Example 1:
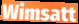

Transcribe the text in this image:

Wimsatt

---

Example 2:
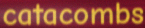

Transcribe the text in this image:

catacombs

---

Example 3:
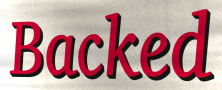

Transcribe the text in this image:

Backed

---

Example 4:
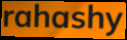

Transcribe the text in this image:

rahashy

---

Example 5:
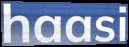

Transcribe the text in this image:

haasi